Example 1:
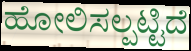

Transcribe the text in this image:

ಹೋಲಿಸಲ್ಪಟ್ಟಿದೆ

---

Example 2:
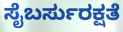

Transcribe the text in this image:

ಸೈಬರ್ಸುರಕ್ಷತೆ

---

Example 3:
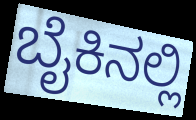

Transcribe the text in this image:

ಬೈಕಿನಲ್ಲಿ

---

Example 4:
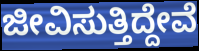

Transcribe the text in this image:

ಜೀವಿಸುತ್ತಿದ್ದೇವೆ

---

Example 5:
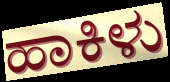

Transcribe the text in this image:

ಹಾಕಿಳು